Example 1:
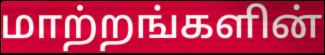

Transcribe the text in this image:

மாற்றங்களின்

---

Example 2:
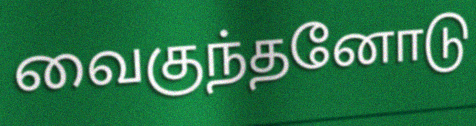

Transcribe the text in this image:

வைகுந்தனோடு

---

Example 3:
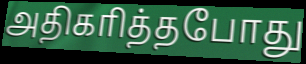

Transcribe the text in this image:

அதிகரித்தபோது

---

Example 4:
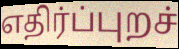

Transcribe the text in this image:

எதிர்ப்புறச்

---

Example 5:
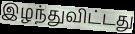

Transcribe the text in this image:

இழந்துவிட்டது